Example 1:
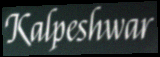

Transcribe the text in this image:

Kalpeshwar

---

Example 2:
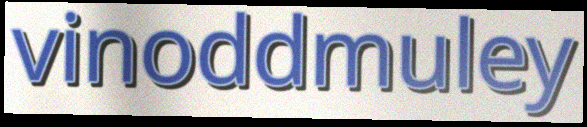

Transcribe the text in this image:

vinoddmuley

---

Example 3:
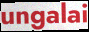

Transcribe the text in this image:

ungalai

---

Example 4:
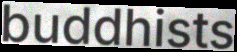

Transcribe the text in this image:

buddhists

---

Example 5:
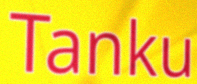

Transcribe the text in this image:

Tanku